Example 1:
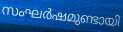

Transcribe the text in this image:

സംഘർഷമുണ്ടായി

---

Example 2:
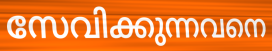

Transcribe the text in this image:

സേവിക്കുന്നവനെ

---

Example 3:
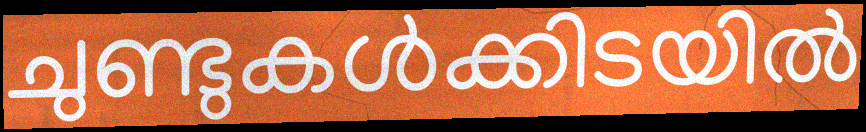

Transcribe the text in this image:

ചുണ്ടുകൾക്കിടയിൽ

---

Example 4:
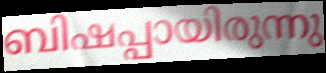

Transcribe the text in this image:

ബിഷപ്പായിരുന്നു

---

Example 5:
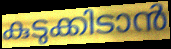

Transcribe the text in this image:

കുടുക്കിടാൻ